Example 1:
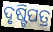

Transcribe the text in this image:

ଦୃଷ୍ଟିପତ୍ର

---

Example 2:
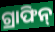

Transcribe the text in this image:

ଗ୍ରାଫିନ୍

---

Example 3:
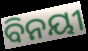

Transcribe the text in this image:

ବିନୟୀ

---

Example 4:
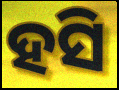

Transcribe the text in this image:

ହସି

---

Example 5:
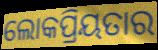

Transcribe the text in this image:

ଲୋକପ୍ରିୟତାର